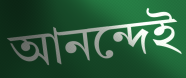
আনন্দেই